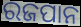
ରଜପାନ